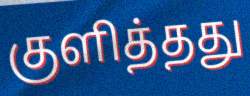
குளித்தது